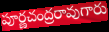
పూర్ణచంద్రరావుగారు